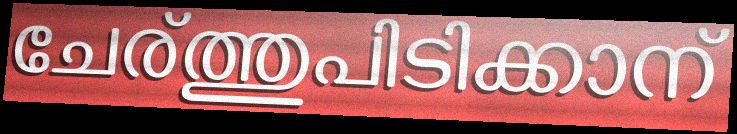
ചേര്ത്തുപിടിക്കാന്